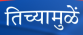
तिच्यामुळें